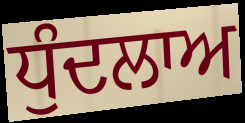
ਧੁੰਦਲਾਅ